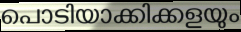
പൊടിയാക്കിക്കളയും